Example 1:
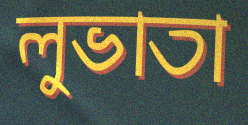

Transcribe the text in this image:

লুভাতা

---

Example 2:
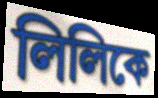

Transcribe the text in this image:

লিলিকে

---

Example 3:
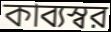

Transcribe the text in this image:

কাব্যস্বর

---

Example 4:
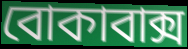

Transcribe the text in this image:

বোকাবাক্স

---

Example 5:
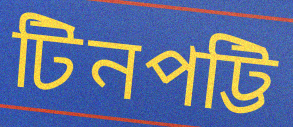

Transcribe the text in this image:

টিনপট্টি